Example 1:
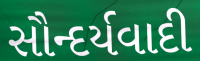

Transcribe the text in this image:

સૌન્દર્યવાદી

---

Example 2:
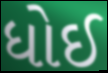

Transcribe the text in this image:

ધોઈ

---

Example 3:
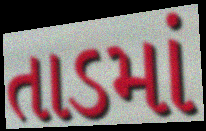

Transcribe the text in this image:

તાડમાં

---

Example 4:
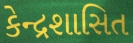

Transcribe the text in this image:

કેન્દ્રશાસિત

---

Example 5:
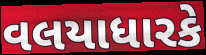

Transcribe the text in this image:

વલયાધારકે